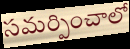
సమర్పించాలో